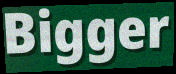
Bigger